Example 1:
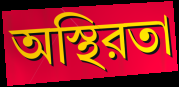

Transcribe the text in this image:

অস্থিরতা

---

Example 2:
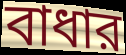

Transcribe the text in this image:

বাধার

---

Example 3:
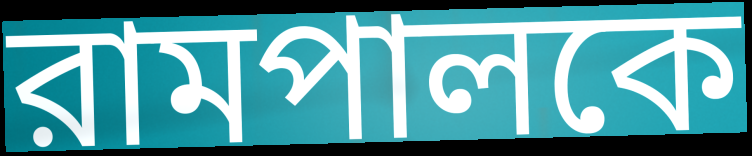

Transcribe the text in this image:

রামপালকে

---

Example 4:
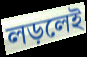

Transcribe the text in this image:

লড়লেই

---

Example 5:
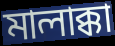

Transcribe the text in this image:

মালাক্কা